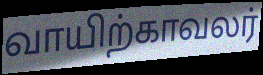
வாயிற்காவலர்